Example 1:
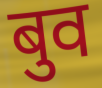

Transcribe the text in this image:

बुव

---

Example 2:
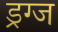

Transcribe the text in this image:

ड्रग्ज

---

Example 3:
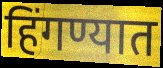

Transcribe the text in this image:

हिंगण्यात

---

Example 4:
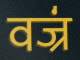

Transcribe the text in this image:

वज्रं॑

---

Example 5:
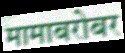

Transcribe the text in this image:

मामाबरोबर